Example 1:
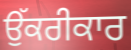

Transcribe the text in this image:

ਉੱਕਰੀਕਾਰ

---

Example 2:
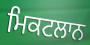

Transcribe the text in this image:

ਮਿਕਟਲਾਨ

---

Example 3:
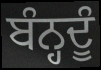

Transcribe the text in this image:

ਬੰਨ੍ਹਦੂੰ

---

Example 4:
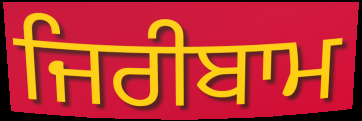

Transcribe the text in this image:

ਜਿਰੀਬਾਮ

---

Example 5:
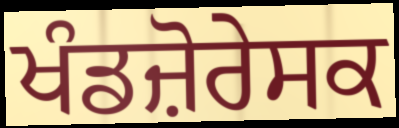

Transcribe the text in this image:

ਖੰਡਜ਼ੋਰੇਸਕ